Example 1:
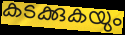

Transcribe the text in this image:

കടക്കുകയും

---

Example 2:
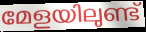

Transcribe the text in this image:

മേളയിലുണ്ട്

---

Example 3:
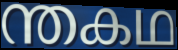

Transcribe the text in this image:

ന്തകഥ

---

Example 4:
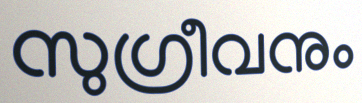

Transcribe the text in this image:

സുഗ്രീവനും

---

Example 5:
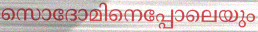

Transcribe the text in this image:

സൊദോമിനെപ്പോലെയും